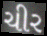
ચીર